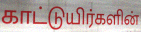
காட்டுயிர்களின்